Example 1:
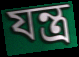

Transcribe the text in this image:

যন্ত্ৰ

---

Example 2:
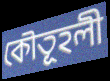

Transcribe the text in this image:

কৌতূহলী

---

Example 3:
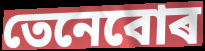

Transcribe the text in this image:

তেনেবোৰ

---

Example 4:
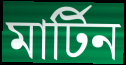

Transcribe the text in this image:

মাৰ্টিন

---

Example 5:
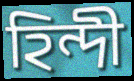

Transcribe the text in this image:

হিন্দী